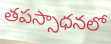
తపస్సాధనలో